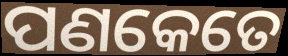
ପଣକେତେ